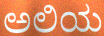
ಅಲಿಯ